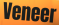
Veneer